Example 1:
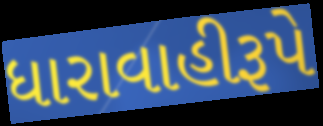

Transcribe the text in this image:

ધારાવાહીરૂપે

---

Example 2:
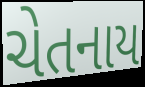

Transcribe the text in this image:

ચેતનાય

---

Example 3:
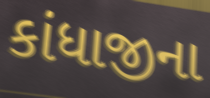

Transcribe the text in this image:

કાંધાજીના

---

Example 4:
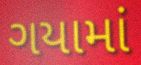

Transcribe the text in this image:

ગયામાં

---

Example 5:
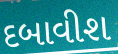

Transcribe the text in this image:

દબાવીશ